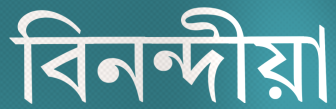
বিনন্দীয়া